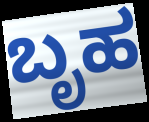
ಬೃಹ